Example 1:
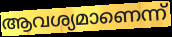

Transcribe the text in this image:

ആവശ്യമാണെന്ന്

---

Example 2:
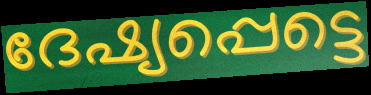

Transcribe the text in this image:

ദേഷ്യപ്പെട്ടെ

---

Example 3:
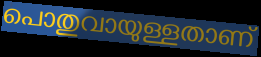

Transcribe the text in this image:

പൊതുവായുള്ളതാണ്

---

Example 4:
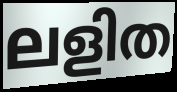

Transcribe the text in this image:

ലളിത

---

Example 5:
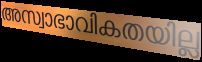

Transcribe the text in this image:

അസ്വാഭാവികതയില്ല